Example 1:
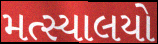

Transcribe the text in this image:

મત્સ્યાલયો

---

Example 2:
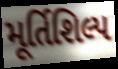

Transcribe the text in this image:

મૂર્તિશિલ્પ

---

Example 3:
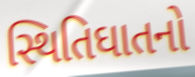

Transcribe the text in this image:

સ્થિતિઘાતનો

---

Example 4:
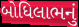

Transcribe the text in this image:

બોધિલાભનું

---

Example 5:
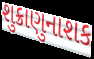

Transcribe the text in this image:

શુક્રાણુનાશક